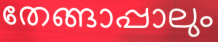
തേങ്ങാപ്പാലും